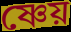
ষ্ণেয়